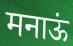
मनाऊं